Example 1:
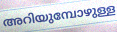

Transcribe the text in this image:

അറിയുമ്പോഴുള്ള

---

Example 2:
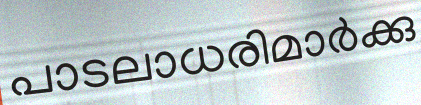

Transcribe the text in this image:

പാടലാധരിമാർക്കു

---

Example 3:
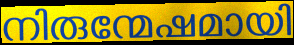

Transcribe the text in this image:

നിരുന്മേഷമായി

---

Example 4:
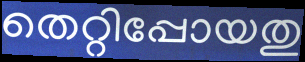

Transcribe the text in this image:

തെറ്റിപ്പോയതു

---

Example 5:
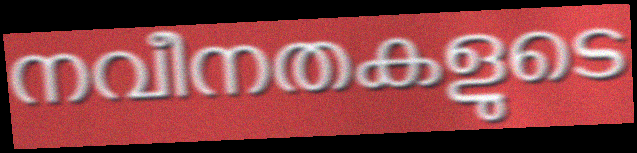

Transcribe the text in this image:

നവീനതകളുടെ